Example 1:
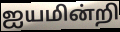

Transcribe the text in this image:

ஐயமின்றி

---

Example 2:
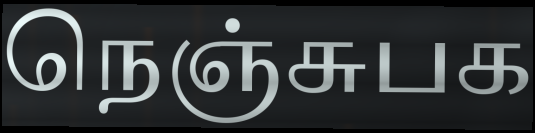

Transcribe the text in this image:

நெஞ்சுபக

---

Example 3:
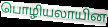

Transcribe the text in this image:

பொழியலாயின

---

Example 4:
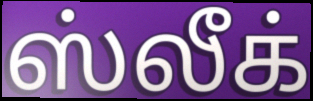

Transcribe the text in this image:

ஸ்லீக்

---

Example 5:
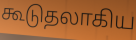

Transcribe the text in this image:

கூடுதலாகிய